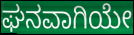
ಘನವಾಗಿಯೇ